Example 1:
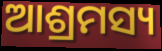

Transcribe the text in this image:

ଆଶ୍ରମସ୍ୟ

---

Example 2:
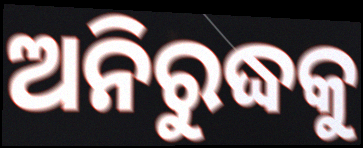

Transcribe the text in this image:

ଅନିରୁଦ୍ଧକୁ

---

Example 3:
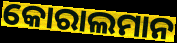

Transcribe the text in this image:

କୋରାଲମାନ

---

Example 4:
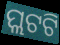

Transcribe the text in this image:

ପ୍ଲଟଟି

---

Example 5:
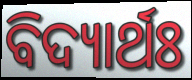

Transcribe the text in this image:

ବିଦ୍ୟାର୍ଥଃ